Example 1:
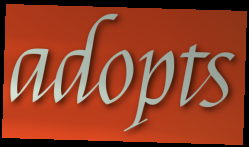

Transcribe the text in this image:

adopts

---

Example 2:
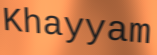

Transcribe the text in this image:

Khayyam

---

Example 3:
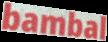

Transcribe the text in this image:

bambal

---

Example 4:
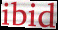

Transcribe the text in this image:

ibid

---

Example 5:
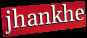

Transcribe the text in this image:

jhankhe